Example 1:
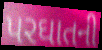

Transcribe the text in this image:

પરઘાતની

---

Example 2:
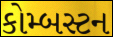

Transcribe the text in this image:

કોમ્બસ્ટન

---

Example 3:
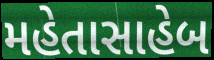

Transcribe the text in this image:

મહેતાસાહેબ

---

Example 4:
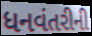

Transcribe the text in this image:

ધનવંતરીની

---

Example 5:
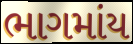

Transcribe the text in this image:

ભાગમાંય